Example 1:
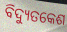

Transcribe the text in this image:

ବିଦ୍ୟୁତକେଶ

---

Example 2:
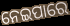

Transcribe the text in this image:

ନେଇପାରେ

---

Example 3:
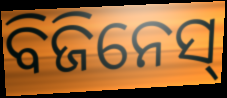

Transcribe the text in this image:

ବିଜିନେସ୍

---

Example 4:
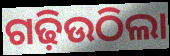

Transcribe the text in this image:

ଗଢ଼ିଉଠିଲା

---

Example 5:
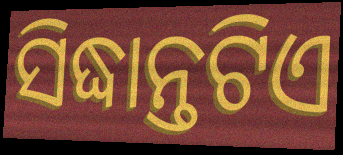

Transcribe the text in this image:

ସିଦ୍ଧାନ୍ତଟିଏ